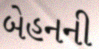
બેહનની